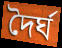
দৈৰ্ঘ